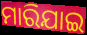
ମାରିଯାଇ